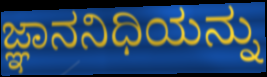
ಜ್ಞಾನನಿಧಿಯನ್ನು